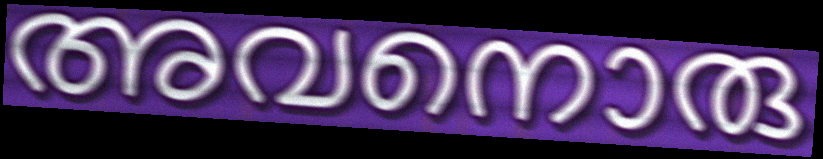
അവനൊരു